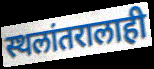
स्थलांतरालाही